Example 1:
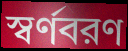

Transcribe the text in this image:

স্বর্ণবরণ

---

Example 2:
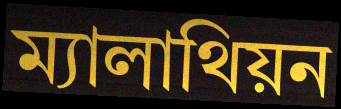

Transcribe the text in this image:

ম্যালাথিয়ন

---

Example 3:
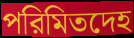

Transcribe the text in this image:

পরিমিতদেহ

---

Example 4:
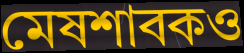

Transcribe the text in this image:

মেষশাবকও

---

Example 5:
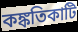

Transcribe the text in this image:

কঙ্কতিকাটি